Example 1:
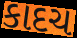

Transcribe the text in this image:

કાદચ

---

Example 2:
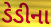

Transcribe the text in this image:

ડેડીના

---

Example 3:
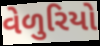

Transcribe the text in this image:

વેળુરિયો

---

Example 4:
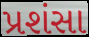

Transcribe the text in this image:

પ્રશંસા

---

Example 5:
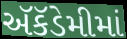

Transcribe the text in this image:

ઍકૅડેમીમાં